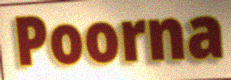
Poorna